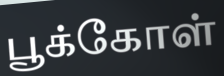
பூக்கோள்